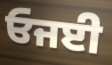
ਓਜਈ